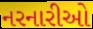
નરનારીઓ